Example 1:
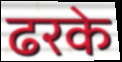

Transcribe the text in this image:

ढरके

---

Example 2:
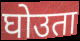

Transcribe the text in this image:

घोउता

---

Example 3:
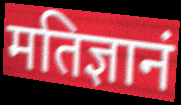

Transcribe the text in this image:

मतिज्ञानं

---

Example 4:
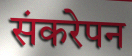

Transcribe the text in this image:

संकरेपन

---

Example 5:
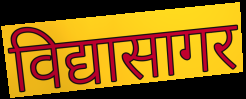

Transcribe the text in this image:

विद्यासागर